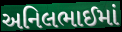
અનિલભાઈમાં